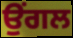
ਉੰਗਲ